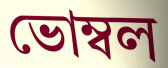
ভোম্বল